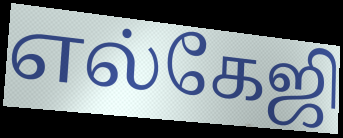
எல்கேஜி